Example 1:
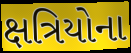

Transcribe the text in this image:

ક્ષત્રિયોના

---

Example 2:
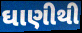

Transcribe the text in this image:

ઘાણીથી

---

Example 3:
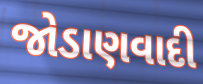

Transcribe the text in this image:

જોડાણવાદી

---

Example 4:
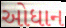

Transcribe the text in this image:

ઓધાન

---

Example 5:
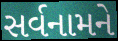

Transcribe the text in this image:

સર્વનામને